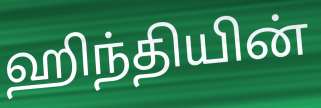
ஹிந்தியின்